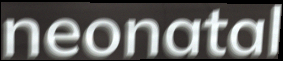
neonatal